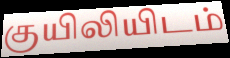
குயிலியிடம்